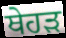
ਥੇਹੜ